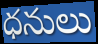
ధనులు